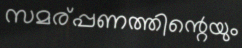
സമര്പ്പണത്തിന്റെയും